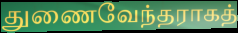
துணைவேந்தராகத்